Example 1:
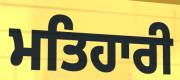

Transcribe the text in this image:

ਮਤਿਹਾਰੀ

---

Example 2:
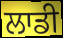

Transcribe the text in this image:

ਲਾਡੀ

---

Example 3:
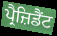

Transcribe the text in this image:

ਪ੍ਰੈਜ਼ਿਡੈਂਟ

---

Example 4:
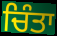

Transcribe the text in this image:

ਚਿੰਤਾ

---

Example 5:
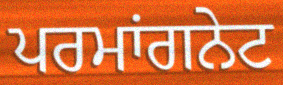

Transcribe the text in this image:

ਪਰਮਾਂਗਨੇਟ